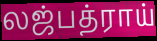
லஜ்பத்ராய்